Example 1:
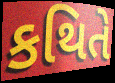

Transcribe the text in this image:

કથિતે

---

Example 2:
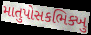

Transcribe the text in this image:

માતુપોસકભિક્ખુ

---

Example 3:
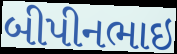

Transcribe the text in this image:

બીપીનભાઇ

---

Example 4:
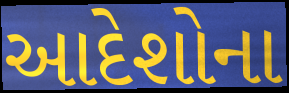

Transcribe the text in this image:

આદેશોના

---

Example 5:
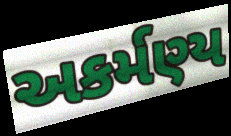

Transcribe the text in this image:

અકર્મણ્ય